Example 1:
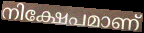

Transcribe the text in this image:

നിക്ഷേപമാണ്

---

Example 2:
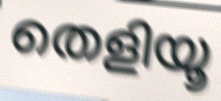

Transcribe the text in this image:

തെളിയൂ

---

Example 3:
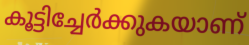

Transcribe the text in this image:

കൂട്ടിച്ചേർക്കുകയാണ്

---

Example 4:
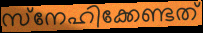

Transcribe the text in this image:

സ്‌നേഹിക്കേണ്ടത്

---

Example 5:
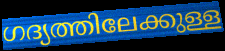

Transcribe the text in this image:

ഗദ്യത്തിലേക്കുള്ള